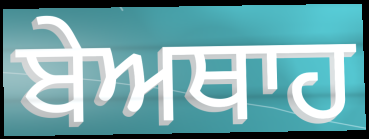
ਬੇਅਥਾਹ